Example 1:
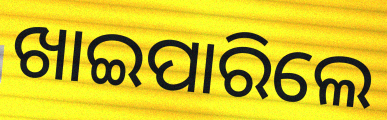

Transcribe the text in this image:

ଖାଇପାରିଲେ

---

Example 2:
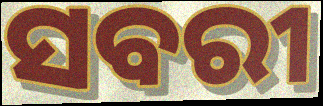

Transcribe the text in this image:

ସବରୀ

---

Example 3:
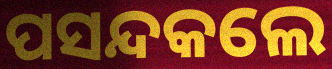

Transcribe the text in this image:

ପସନ୍ଦକଲେ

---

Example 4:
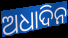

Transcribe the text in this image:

ଅଧାଦିନ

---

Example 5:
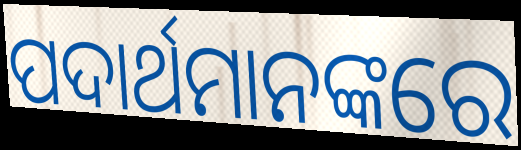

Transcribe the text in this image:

ପଦାର୍ଥମାନଙ୍କରେ